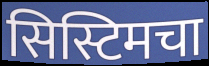
सिस्टिमचा